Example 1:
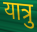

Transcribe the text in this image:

यात्रु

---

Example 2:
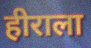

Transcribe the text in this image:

हीराला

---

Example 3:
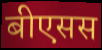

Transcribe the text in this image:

बीएसस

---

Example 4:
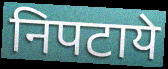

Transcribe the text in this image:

निपटाये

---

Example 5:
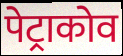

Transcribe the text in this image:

पेट्राकोव